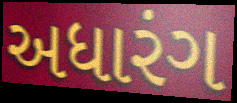
અધારંગ